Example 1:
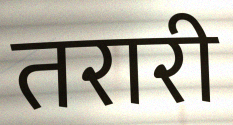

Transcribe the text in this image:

तरारी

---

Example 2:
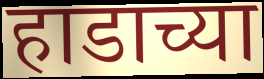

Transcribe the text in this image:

हाडाच्या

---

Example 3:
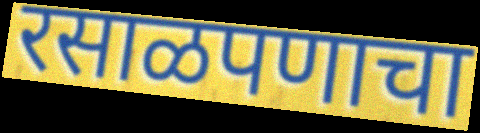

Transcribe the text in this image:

रसाळपणाचा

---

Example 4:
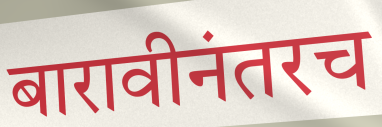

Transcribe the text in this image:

बारावीनंतरच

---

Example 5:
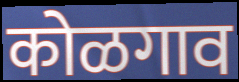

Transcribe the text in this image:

कोळगाव